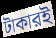
টাকারই